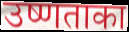
उष्णताका